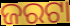
ଜରଟା